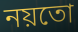
নয়তো